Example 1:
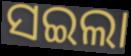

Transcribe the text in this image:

ସଇଲା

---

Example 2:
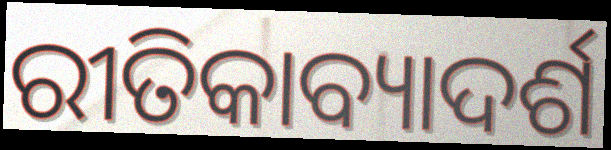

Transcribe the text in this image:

ରୀତିକାବ୍ୟାଦର୍ଶ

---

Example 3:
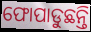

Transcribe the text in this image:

ଫୋପାଡୁଛନ୍ତି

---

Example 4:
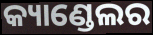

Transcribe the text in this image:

କ୍ୟାଣ୍ଡେଲର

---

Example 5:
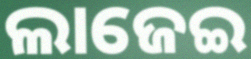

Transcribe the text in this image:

ଲାଜେଇ